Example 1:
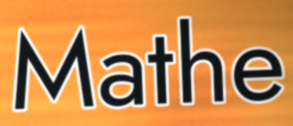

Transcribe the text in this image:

Mathe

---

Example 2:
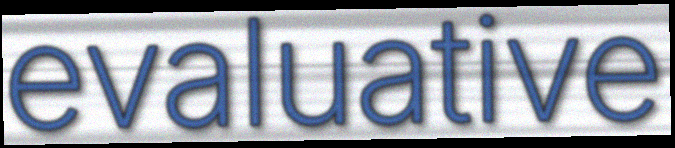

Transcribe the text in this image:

evaluative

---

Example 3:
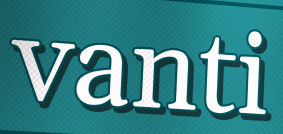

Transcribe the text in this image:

vanti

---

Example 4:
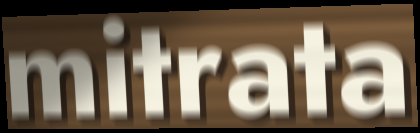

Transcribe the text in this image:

mitrata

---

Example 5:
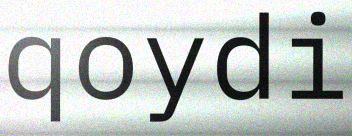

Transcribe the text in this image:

qoydi